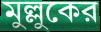
মুল্লুকের